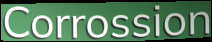
Corrossion